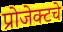
प्रोजेक्टचे